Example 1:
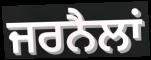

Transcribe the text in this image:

ਜਰਨੈਲਾਂ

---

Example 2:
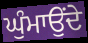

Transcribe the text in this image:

ਘੁੰਮਾਉਂਦੇ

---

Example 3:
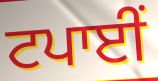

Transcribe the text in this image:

ਟਪਾਈਂ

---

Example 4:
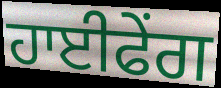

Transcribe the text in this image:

ਹਾਈਫੇਂਗ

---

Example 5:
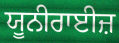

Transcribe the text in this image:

ਯੂਨੀਰਾਈਜ਼